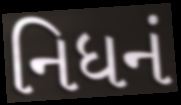
નિધનં